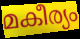
മകീര്യം